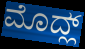
ಮೊದ್ಲ್